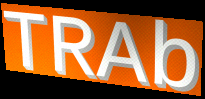
TRAb